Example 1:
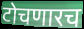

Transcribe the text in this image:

टोचणारच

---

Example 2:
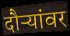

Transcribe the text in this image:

दौऱ्यांवर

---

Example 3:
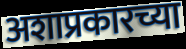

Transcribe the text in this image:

अशाप्रकारच्या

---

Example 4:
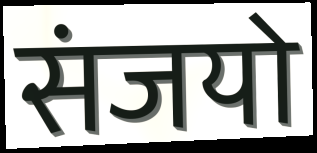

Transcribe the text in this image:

संजयो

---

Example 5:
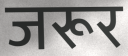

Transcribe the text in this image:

जरूर